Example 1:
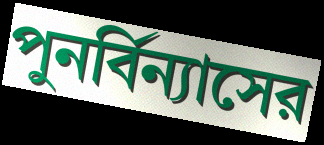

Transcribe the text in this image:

পুনর্বিন্যাসের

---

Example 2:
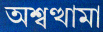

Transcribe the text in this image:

অশ্বত্থামা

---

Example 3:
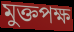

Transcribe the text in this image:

মুক্তপক্ষ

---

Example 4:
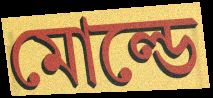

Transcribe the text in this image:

মোল্ডে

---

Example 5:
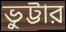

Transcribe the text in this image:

ভুট্টার